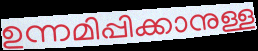
ഉന്നമിപ്പിക്കാനുള്ള